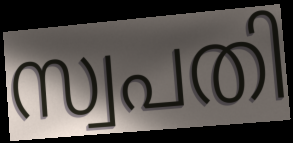
സ്വപതി